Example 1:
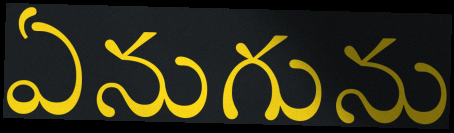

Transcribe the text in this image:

ఏనుగును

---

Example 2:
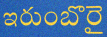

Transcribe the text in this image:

ఇరుంబొరై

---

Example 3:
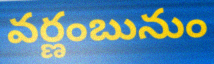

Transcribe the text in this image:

వర్ణంబునుం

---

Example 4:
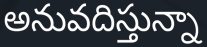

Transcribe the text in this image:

అనువదిస్తున్నా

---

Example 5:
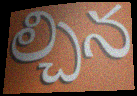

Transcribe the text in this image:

ల్చిన